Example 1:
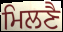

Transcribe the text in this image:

ਮਿਲਣੈ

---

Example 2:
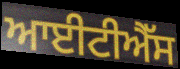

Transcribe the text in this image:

ਆਈਟੀਐੱਸ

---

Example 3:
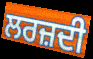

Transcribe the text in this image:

ਲਰਜ਼ਦੀ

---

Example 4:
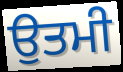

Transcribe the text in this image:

ਉਤਮੀ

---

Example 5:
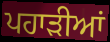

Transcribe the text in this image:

ਪਹਾਡ਼ੀਆਂ